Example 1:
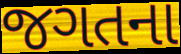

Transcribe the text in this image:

જગતના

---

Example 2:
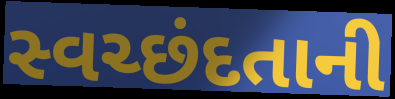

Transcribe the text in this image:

સ્વચ્છંદતાની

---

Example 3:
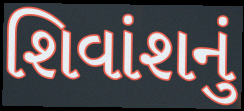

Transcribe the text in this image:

શિવાંશનું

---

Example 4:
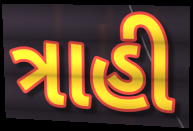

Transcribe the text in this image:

ત્રાહી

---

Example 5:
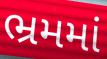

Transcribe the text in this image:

ભ્રમમાં